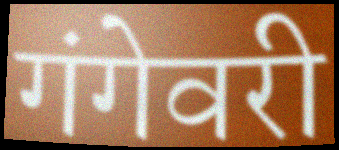
गंगेवरी